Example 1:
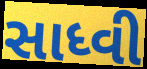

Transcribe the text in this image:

સાધ્વી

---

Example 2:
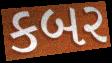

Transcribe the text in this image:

કબર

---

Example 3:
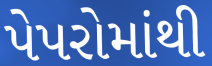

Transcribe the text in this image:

પેપરોમાંથી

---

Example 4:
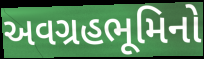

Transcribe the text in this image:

અવગ્રહભૂમિનો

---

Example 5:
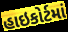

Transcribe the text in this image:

હાઇકોર્ટમાં